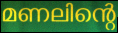
മണലിന്റെ